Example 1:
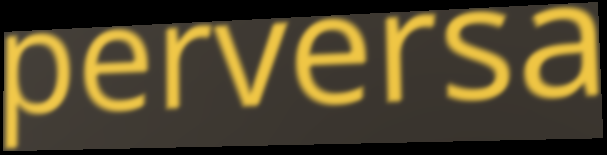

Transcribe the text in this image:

perversa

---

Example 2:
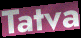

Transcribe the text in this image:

Tatva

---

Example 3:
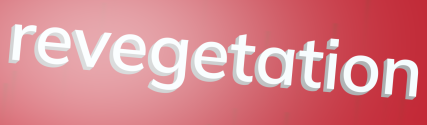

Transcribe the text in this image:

revegetation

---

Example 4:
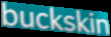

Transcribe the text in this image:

buckskin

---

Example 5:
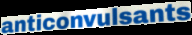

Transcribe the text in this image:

anticonvulsants